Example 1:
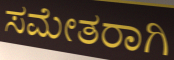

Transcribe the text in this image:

ಸಮೇತರಾಗಿ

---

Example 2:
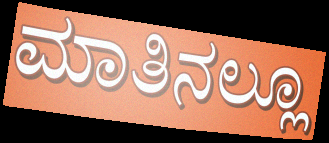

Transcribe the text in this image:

ಮಾತಿನಲ್ಲೂ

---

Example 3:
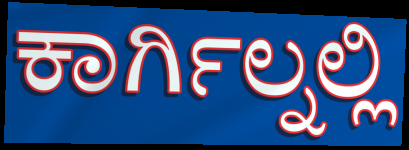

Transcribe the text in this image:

ಕಾರ್ಗಿಲ್ನಲ್ಲಿ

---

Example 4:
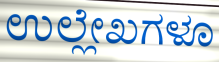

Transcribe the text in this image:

ಉಲ್ಲೇಖಗಳೂ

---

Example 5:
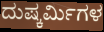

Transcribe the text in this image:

ದುಷ್ಕರ್ಮಿಗಳ